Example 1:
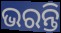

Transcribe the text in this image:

ଭରନ୍ତି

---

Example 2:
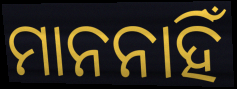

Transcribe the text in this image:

ମାନନାହିଁ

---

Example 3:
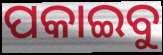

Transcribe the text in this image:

ପକାଇବୁ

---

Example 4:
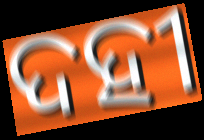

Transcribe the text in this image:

ଦହୀ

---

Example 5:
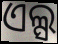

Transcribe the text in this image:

ଏଲ୍ସ